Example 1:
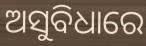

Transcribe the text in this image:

ଅସୁବିଧାରେ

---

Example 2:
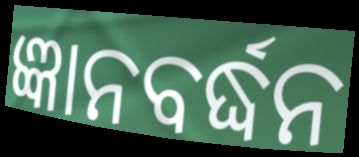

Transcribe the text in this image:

ଜ୍ଞାନବର୍ଦ୍ଧନ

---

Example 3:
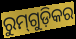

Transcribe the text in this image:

ରୁମ୍‌ଗୁଡ଼ିକର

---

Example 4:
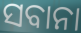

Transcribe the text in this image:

ସବାନା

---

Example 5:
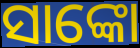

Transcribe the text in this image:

ସାଙ୍କୋ